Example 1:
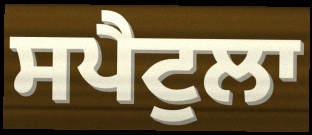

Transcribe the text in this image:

ਸਪੈਟੁਲਾ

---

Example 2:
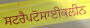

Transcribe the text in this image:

ਸਟਰੈਪਟੋਸਾਈਕਲੀਨ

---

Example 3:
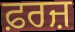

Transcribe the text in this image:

ਫ਼ਰਜ਼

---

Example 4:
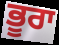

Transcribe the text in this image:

ਭੂਰਾ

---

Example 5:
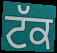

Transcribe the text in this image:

ਟੱਕ